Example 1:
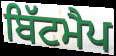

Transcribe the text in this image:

ਬਿੱਟਮੈਪ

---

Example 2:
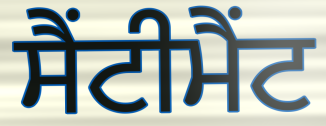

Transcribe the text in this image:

ਸੈਂਟੀਮੈਂਟ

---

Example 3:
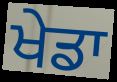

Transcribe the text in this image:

ਖੇਡਾ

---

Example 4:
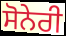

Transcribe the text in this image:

ਸੋਨੇਰੀ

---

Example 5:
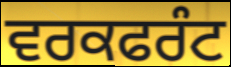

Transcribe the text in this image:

ਵਰਕਫਰੰਟ